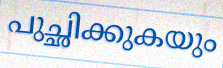
പുച്ഛിക്കുകയും